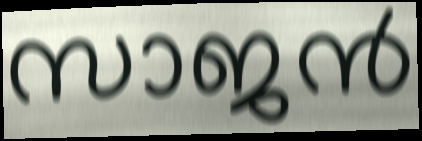
സാജൻ